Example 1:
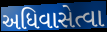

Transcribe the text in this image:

અધિવાસેત્વા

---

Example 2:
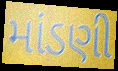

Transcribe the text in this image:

માંડણી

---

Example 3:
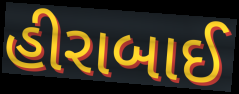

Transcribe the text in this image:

હીરાબાઈ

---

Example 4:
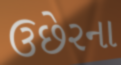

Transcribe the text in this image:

ઉછેરના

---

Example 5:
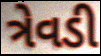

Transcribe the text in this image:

ત્રેવડી